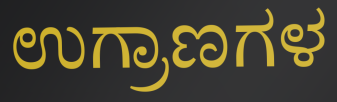
ಉಗ್ರಾಣಗಳ